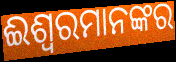
ଈଶ୍ୱରମାନଙ୍କର